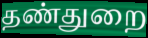
தண்துறை